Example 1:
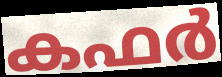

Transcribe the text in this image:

കഫർ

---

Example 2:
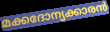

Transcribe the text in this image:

മക്കദോന്യക്കാരൻ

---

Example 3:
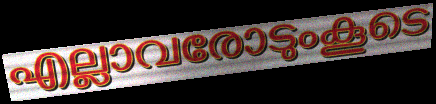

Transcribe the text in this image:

എല്ലാവരോടുംകൂടെ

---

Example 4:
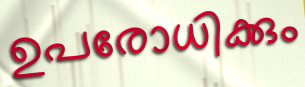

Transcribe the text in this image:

ഉപരോധിക്കും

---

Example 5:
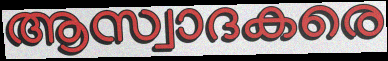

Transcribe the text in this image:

ആസ്വാദകരെ